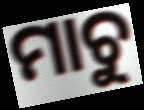
ମାଚୁ